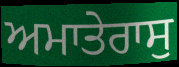
ਅਮਾਤੇਰਾਸੁ